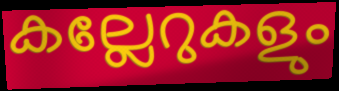
കല്ലേറുകളും